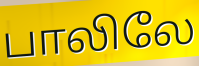
பாலிலே